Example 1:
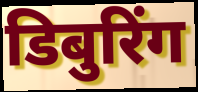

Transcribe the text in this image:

डिबुरिंग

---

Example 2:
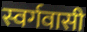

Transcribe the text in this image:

स्‍वर्गवासी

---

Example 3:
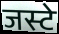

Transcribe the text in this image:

जस्टे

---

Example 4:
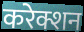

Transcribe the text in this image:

करेक्शन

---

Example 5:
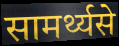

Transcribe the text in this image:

सामर्थ्यसे